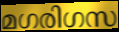
മഗരിഗസ